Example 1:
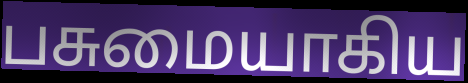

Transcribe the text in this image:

பசுமையாகிய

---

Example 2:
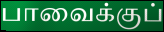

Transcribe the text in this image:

பாவைக்குப்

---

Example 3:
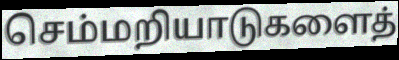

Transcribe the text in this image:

செம்மறியாடுகளைத்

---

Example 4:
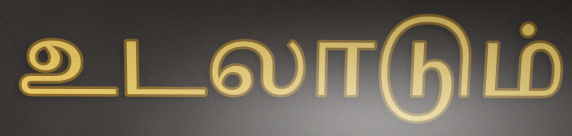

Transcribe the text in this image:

உடலாடும்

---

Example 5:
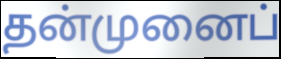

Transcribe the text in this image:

தன்முனைப்